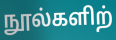
நூல்களிற்